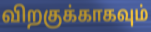
விறகுக்காகவும்